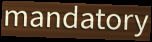
mandatory